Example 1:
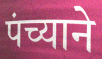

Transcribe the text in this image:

पंच्याने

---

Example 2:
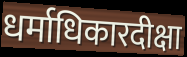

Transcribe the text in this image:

धर्माधिकारदीक्षा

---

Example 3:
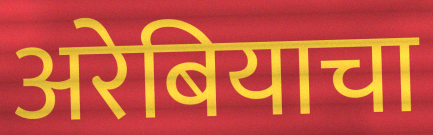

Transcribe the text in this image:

अरेबियाचा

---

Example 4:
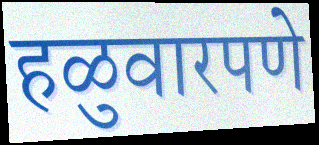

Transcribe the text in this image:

हळुवारपणे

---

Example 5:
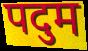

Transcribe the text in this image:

पदुम